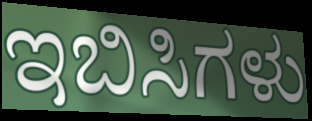
ಇಬಿಸಿಗಳು